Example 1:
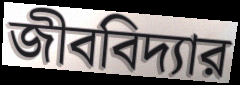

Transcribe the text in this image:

জীববিদ্যার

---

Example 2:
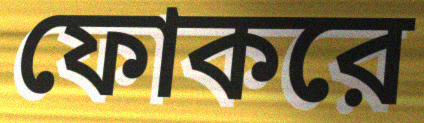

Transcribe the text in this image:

ফোকরে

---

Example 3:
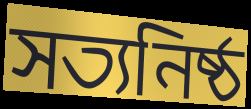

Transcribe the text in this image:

সত্যনিষ্ঠ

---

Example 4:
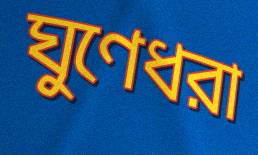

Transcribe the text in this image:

ঘুণেধরা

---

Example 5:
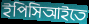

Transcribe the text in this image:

ইপিসিআইতে